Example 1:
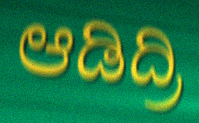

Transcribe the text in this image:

ಆಡಿದ್ರಿ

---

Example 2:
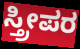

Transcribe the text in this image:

ಸ್ತ್ರೀಪರ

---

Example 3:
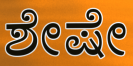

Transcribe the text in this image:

ಶೇಷೇ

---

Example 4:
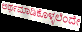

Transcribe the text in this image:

ಅರ್ಥಮಾಡಿಕೊಳ್ಳಲೆಂದೇ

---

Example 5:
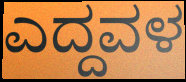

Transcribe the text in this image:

ಎದ್ದವಳ